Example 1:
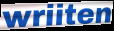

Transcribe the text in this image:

wriiten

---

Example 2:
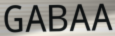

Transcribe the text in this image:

GABAA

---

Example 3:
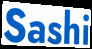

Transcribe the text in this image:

Sashi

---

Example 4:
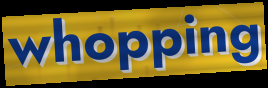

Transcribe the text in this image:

whopping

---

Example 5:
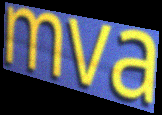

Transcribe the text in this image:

mva